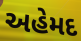
અહેમદ